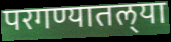
परगण्यातल्या